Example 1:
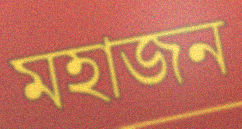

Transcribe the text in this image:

মহাজন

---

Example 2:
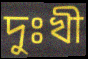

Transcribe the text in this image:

দুঃখী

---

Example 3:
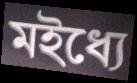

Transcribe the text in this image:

মইধ্যে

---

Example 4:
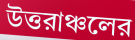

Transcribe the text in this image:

উত্তরাঞ্চলের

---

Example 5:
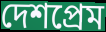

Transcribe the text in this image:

দেশপ্রেম